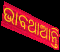
ଭାବଥାଆନ୍ତି